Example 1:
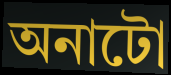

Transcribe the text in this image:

অনাটো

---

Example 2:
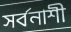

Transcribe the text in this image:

সৰ্বনাশী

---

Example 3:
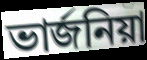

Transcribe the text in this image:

ভাৰ্জনিয়া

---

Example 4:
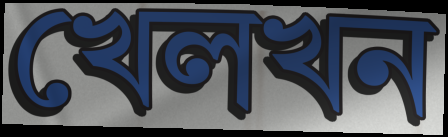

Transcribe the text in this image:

খেলখন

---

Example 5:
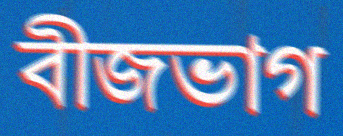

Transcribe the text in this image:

বীজভাগ